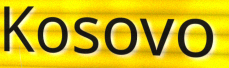
Kosovo